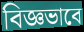
বিজ্ঞভাবে